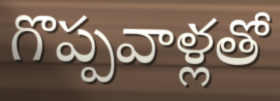
గొప్పవాళ్లతో